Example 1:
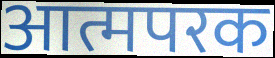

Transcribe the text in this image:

आत्मपरक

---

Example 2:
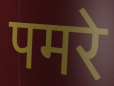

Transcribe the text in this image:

पमरे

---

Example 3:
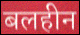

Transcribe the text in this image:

बलहीन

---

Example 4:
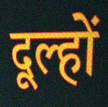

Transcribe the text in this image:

दूल्‍हों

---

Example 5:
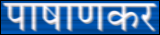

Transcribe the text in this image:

पाषाणकर